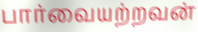
பார்வையற்றவன்